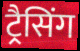
ट्रैसिंग